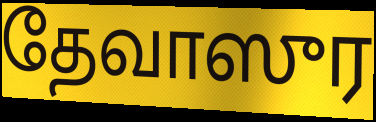
தேவாஸுர